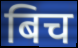
बिच